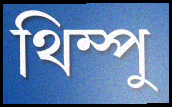
থিম্পু